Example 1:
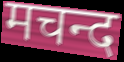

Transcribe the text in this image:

मचन्द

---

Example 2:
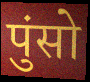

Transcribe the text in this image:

पुंसो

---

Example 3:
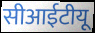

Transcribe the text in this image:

सीआईटीयू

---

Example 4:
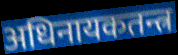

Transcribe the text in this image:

अधिनायकतन्त्र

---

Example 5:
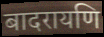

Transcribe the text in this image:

बादरायणि